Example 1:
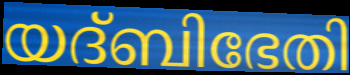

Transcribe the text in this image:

യദ്ബിഭേതി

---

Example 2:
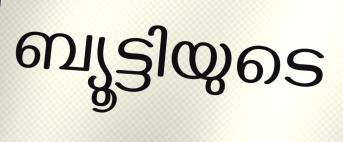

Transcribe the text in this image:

ബ്യൂട്ടിയുടെ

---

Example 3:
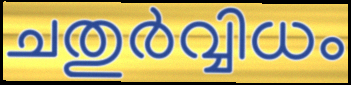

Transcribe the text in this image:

ചതുർവ്വിധം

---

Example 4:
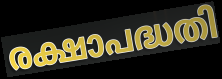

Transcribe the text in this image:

രക്ഷാപദ്ധതി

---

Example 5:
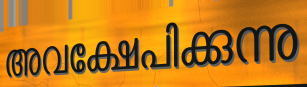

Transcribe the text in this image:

അവക്ഷേപിക്കുന്നു